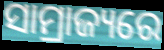
ସାମ୍ରାଜ୍ୟରେ